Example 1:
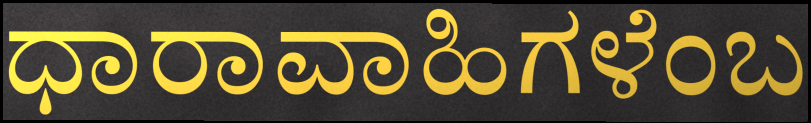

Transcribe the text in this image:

ಧಾರಾವಾಹಿಗಳೆಂಬ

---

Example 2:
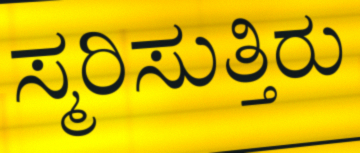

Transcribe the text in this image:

ಸ್ಮರಿಸುತ್ತಿರು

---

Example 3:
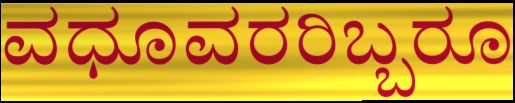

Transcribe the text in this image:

ವಧೂವರರಿಬ್ಬರೂ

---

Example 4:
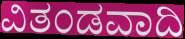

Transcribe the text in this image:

ವಿತಂಡವಾದಿ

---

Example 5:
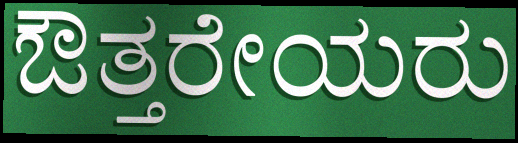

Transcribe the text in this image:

ಔತ್ತರೇಯರು